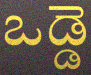
ఒడ్డె